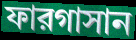
ফারগাসান